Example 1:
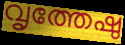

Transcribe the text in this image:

വൃത്തേഷു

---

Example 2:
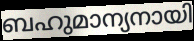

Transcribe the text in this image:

ബഹുമാന്യനായി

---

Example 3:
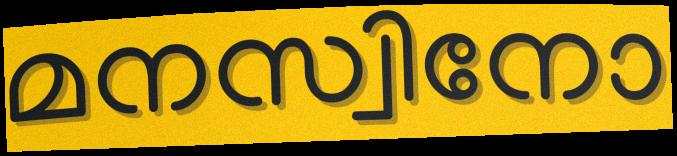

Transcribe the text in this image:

മനസ്വിനോ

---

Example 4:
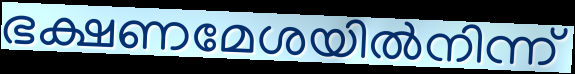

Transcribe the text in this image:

ഭക്ഷണമേശയിൽനിന്ന്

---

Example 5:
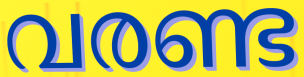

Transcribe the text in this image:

വരണ്ട